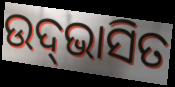
ଉଦ୍‍ଭାସିତ